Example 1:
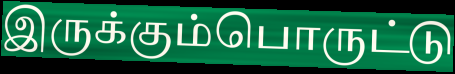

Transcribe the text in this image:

இருக்கும்பொருட்டு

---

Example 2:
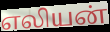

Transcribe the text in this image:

எலியன்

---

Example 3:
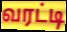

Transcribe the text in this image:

வரட்டி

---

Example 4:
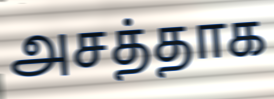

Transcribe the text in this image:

அசத்தாக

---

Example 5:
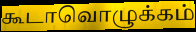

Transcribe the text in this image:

கூடாவொழுக்கம்